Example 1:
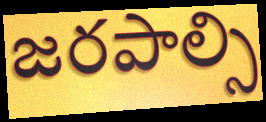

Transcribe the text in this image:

జరపాల్సి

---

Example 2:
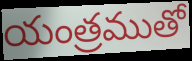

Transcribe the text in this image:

యంత్రముతో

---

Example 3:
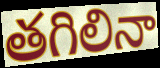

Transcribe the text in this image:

తగిలినా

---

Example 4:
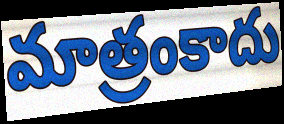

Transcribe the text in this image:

మాత్రంకాదు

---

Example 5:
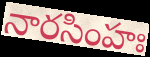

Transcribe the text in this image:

నారసింహః